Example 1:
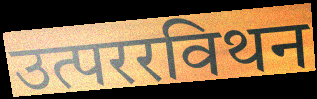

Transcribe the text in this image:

उत्पररविथन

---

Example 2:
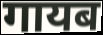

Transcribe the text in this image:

गायब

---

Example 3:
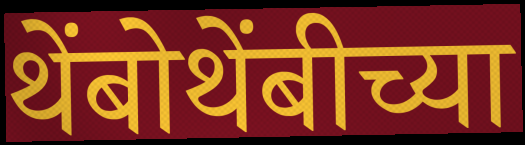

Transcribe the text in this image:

थेंबोथेंबीच्या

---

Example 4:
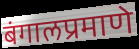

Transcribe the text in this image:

बंगालप्रमाणे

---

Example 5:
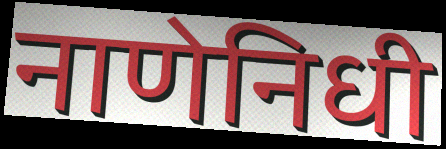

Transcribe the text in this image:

नाणेनिधी